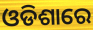
ଓଡିଶାରେ